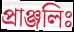
প্রাঞ্জলিঃ